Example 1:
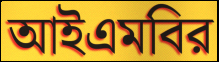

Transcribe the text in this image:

আইএমবির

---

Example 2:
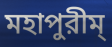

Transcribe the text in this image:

মহাপুরীম্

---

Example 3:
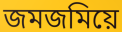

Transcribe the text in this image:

জমজমিয়ে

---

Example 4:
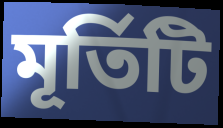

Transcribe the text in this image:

মূর্তিটি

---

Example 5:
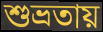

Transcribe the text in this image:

শুভ্রতায়